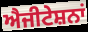
ਐਜੀਟੇਸ਼ਨਾਂ